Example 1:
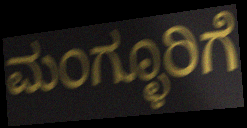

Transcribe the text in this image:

ಮಂಗ್ಳೂರಿಗೆ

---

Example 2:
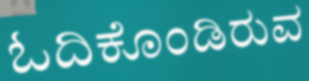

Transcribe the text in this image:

ಓದಿಕೊಂಡಿರುವ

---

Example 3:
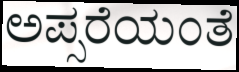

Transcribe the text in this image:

ಅಪ್ಸರೆಯಂತೆ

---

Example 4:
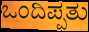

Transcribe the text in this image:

ಒಂದಿಪ್ಪತು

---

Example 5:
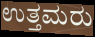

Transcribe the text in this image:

ಉತ್ತಮರು